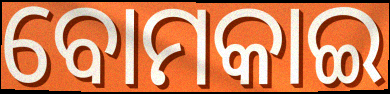
ବୋମକାଇ